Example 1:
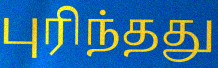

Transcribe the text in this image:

புரிந்தது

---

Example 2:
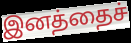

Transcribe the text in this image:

இனத்தைச்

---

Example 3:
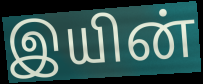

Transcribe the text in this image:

இயின்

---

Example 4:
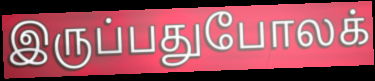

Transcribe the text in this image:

இருப்பதுபோலக்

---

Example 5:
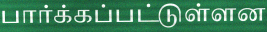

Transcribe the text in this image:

பார்க்கப்பட்டுள்ளன